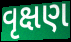
વૃક્ષણ